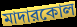
মাদারকোল